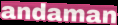
andaman